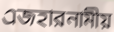
এজহারনামীয়